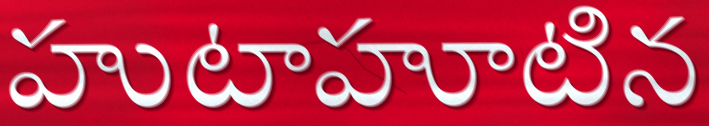
హుటాహూటిన